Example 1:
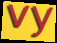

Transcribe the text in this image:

vy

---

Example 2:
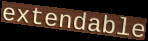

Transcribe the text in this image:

extendable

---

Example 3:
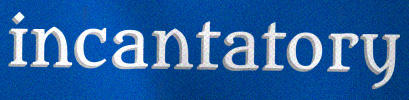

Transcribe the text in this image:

incantatory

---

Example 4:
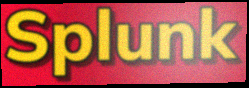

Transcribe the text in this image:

Splunk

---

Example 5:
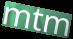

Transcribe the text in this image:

mtm